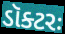
ડૉક્ટરઃ